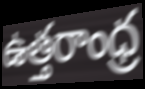
ఉత్తరాంధ్ర